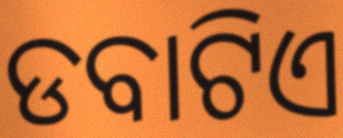
ଡବାଟିଏ